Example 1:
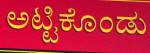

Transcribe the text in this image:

ಅಟ್ಟಿಕೊಂಡು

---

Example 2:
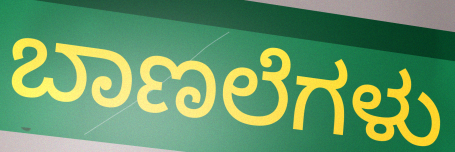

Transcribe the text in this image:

ಬಾಣಲೆಗಳು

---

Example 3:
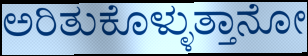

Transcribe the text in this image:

ಅರಿತುಕೊಳ್ಳುತ್ತಾನೋ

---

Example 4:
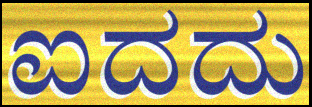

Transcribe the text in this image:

ಐದದು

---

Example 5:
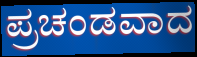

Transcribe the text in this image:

ಪ್ರಚಂಡವಾದ